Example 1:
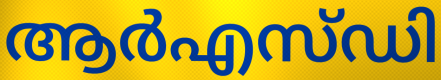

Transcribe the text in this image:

ആർഎസ്ഡി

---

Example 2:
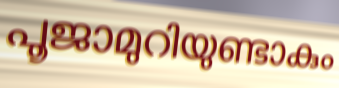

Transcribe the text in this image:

പൂജാമുറിയുണ്ടാകും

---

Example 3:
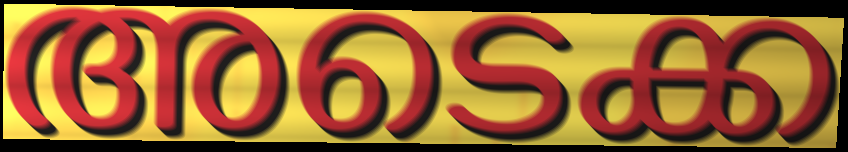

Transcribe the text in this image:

അടെക്ക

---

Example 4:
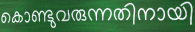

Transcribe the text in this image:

കൊണ്ടുവരുന്നതിനായി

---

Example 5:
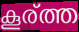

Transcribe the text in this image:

കൂര്ത്ത